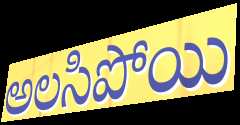
అలసిపోయి